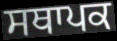
ਸਥਾਪਕ